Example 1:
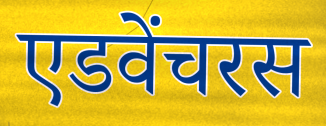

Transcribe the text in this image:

एडवेंचरस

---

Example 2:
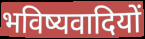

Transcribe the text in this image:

भविष्यवादियों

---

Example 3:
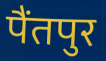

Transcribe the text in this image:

पैंतपुर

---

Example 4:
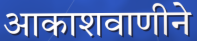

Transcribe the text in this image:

आकाशवाणीने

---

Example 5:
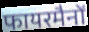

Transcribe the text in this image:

फायरमैनों